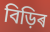
বিড়িৰ